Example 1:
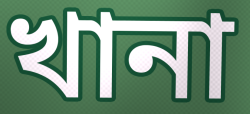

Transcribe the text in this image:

খানা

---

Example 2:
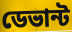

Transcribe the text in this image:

ডেভান্ট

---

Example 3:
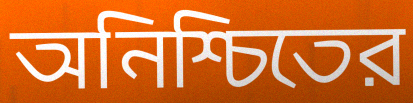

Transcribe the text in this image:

অনিশ্চিতের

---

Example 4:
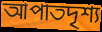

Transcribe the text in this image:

আপাতদৃশ্য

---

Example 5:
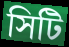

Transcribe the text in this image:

সিটি